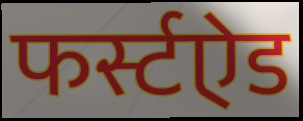
फर्स्टऐड